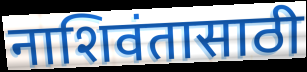
नाशिवंतासाठी